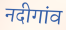
नदीगांव